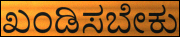
ಖಂಡಿಸಬೇಕು